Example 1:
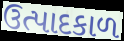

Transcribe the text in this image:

ઉત્પાદકાળ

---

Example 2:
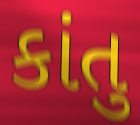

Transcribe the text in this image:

કાંતુ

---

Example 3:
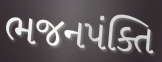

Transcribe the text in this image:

ભજનપંક્તિ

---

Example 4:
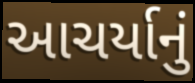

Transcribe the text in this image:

આચર્યાનું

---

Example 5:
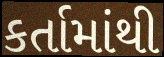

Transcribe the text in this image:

કર્તામાંથી